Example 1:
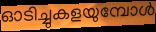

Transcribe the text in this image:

ഓടിച്ചുകളയുമ്പോൾ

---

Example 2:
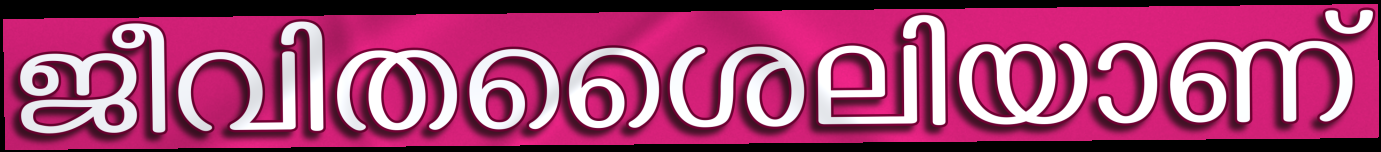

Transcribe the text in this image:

ജീവിതശൈലിയാണ്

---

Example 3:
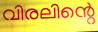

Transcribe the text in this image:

വിരലിന്റെ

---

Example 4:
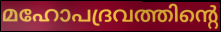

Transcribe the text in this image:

മഹോപദ്രവത്തിന്റെ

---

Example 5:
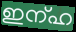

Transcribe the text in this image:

ഇന്ഹ